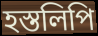
হস্তলিপি